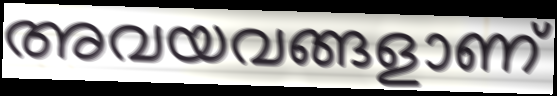
അവയവങ്ങളാണ്